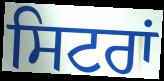
ਸਿਟਰਾਂ